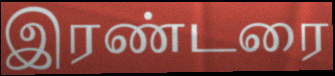
இரண்டரை